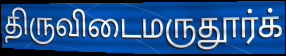
திருவிடைமருதூர்க்